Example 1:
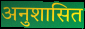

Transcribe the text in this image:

अनुशासित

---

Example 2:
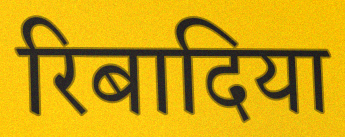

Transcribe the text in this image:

रिबादिया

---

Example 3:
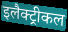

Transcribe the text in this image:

इलैक्ट्रीकल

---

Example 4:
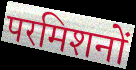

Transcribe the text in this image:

परमिशनों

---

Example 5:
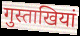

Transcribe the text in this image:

गुस्ताखियां